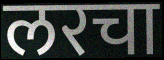
लरचा